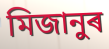
মিজানুৰ